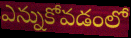
ఎన్నుకోవడంలో